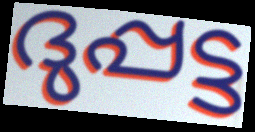
ദുപ്പട്ട